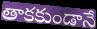
తాకకుండానే